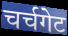
चर्चगेट